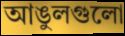
আঙুলগুলো